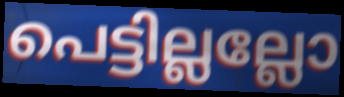
പെട്ടില്ലല്ലോ